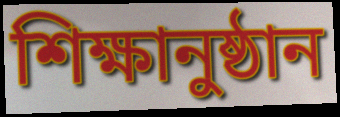
শিক্ষানুষ্ঠান